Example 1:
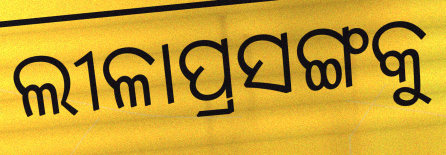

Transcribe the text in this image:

ଲୀଳାପ୍ରସଙ୍ଗକୁ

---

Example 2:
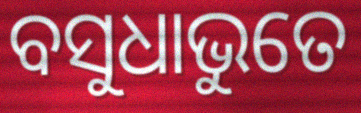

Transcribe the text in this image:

ବସୁଧାଭୁତେ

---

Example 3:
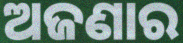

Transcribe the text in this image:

ଅଜଣାର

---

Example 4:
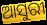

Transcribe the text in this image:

ଆସୁରୀ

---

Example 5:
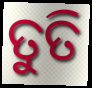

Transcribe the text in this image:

ତୁତି